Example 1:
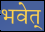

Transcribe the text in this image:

भवेत्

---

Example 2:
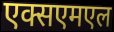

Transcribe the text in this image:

एक्सएमएल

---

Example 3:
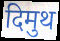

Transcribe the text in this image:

दिमुथ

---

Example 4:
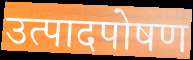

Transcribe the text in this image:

उत्पादपोषण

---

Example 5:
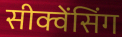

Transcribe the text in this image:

सीक्वेंसिंग